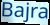
Bajra